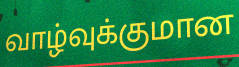
வாழ்வுக்குமான